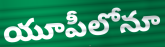
యూపీలోనూ